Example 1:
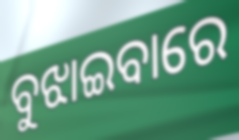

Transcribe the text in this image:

ବୁଝାଇବାରେ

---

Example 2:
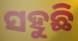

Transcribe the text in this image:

ସହୁଛି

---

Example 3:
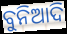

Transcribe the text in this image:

ବୁନିଆଦି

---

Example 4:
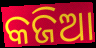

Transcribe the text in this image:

କଜିଆ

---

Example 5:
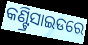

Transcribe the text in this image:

କଣ୍ଟ୍ରିସାଇଡରେ